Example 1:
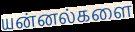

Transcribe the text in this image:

யன்னல்களை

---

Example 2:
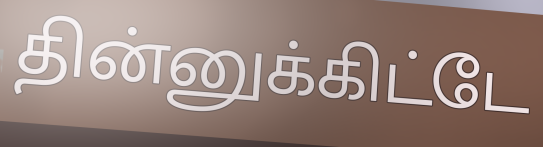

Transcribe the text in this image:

தின்னுக்கிட்டே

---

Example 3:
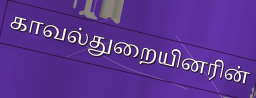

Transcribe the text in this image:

காவல்துறையினரின்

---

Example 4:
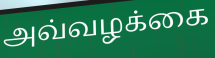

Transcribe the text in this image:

அவ்வழக்கை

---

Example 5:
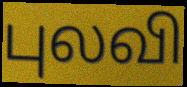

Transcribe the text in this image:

புலவி